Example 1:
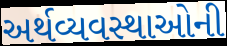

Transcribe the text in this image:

અર્થવ્યવસ્થાઓની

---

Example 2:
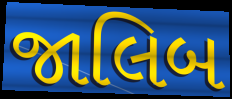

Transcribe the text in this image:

જાલિબ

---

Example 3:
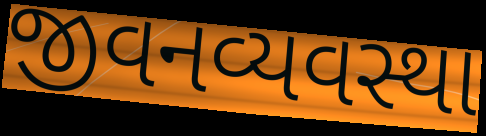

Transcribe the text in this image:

જીવનવ્યવસ્થા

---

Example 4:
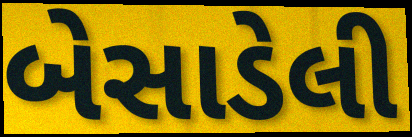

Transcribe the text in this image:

બેસાડેલી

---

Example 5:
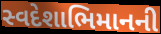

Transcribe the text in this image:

સ્વદેશાભિમાનની